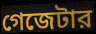
গেজেটার